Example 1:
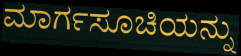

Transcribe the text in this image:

ಮಾರ್ಗಸೂಚಿಯನ್ನು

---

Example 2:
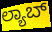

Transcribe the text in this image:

ಲ್ಯಾಬ್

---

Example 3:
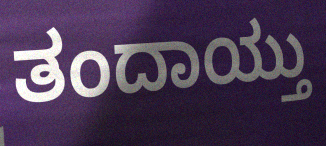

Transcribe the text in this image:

ತಂದಾಯ್ತು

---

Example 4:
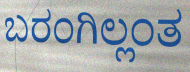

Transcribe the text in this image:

ಬರಂಗಿಲ್ಲಂತ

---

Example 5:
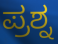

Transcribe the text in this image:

ಪ್ರಶ್ನ